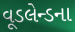
વૂડલેન્ડના